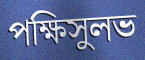
পক্ষিসুলভ